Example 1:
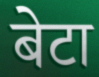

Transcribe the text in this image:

बेटा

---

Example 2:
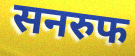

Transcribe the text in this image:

सनरुफ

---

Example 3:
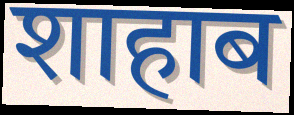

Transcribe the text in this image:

शाहाब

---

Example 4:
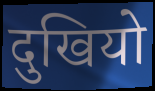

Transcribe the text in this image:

दुखियो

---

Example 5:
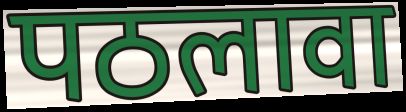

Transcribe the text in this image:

पठलावा